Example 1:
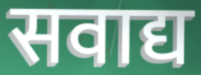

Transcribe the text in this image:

सवाद्य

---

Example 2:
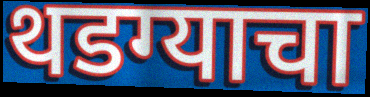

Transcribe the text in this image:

थडग्याचा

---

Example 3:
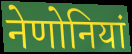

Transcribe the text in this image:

नेणोनियां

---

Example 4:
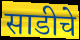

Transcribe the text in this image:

साडीचे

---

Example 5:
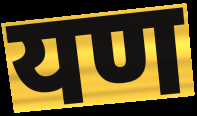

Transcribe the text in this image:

यण